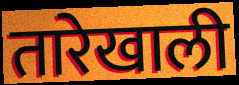
तारेखाली